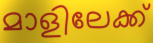
മാളിലേക്ക്